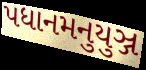
પધાનમનુયુઞ્જ